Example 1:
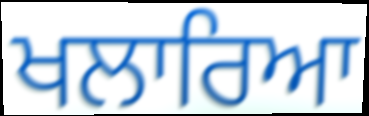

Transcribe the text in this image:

ਖਲਾਰਿਆ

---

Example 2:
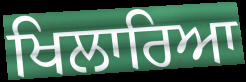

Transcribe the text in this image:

ਖਿਲਾਰਿਆ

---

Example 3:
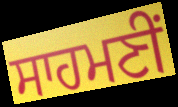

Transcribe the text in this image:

ਸਾਹਮਣੀਂ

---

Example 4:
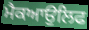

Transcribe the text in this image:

ਮੈਕਆਉਲਿਫ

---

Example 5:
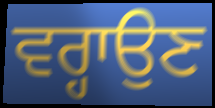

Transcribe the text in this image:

ਵਰ੍ਹਾਉਣ